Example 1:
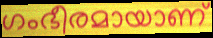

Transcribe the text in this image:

ഗംഭീരമായാണ്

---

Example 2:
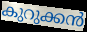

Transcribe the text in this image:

കുറുക്കൻ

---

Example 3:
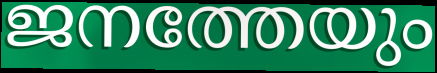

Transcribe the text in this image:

ജനത്തേയും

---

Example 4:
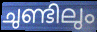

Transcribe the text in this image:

ചുണ്ടിലും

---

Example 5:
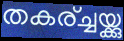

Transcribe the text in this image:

തകര്ച്ചയ്ക്കു